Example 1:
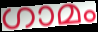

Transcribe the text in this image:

ഗാമം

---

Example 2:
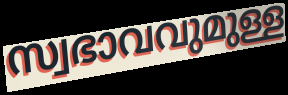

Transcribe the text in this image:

സ്വഭാവവുമുള്ള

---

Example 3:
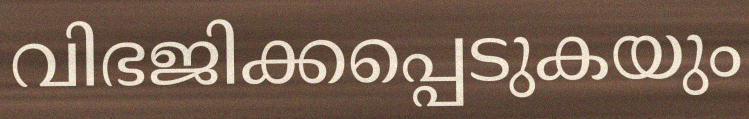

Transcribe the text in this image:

വിഭജിക്കപ്പെടുകയും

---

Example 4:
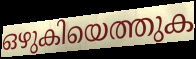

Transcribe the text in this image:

ഒഴുകിയെത്തുക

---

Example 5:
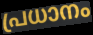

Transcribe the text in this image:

പ്രധാനം